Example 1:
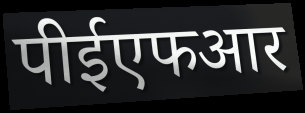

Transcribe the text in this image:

पीईएफआर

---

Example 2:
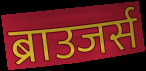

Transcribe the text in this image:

ब्राउजर्स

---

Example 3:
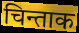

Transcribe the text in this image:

चिन्ताक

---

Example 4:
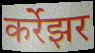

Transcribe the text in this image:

कर्रेझर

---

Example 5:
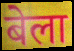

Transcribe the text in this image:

बेला